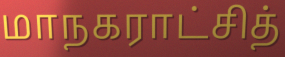
மாநகராட்சித்